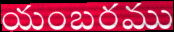
యంబరము